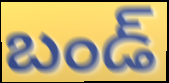
బండ్